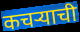
कचर्‍याची